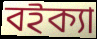
বইক্যা